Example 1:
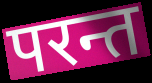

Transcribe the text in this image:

परन्त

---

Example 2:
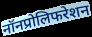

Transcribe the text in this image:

नॉनप्रोलिफरेशन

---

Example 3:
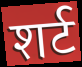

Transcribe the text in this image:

शर्ट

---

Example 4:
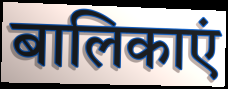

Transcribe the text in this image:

बालिकाएं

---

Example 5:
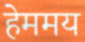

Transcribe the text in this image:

हेममय